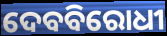
ଦେବବିରୋଧୀ